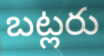
బట్లరు